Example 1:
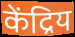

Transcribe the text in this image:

केंद्रिय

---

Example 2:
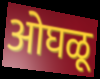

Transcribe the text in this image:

ओघळू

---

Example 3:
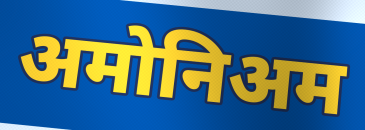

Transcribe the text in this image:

अमोनिअम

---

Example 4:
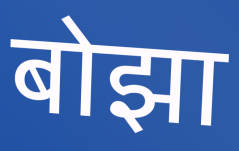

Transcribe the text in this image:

बोझा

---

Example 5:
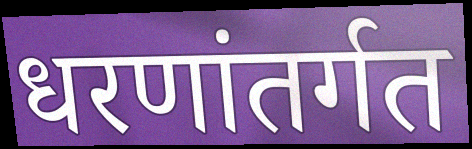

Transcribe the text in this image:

धरणांतर्गत